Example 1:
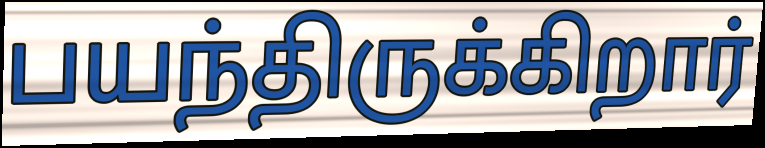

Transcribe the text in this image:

பயந்திருக்கிறார்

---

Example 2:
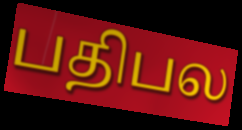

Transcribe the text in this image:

பதிபல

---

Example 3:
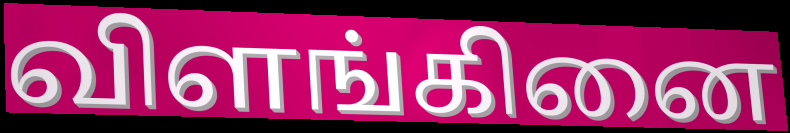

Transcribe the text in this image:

விளங்கினை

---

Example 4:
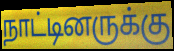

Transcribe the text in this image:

நாட்டினருக்கு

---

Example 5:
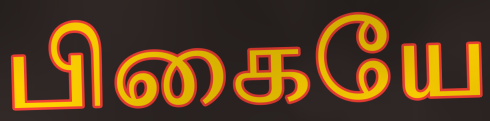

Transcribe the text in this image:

பிகையே